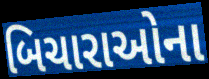
બિચારાઓના